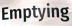
Emptying